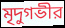
মৃদুগভীর